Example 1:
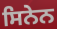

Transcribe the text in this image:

ਸਿਨੇਨ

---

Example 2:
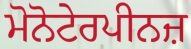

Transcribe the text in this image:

ਮੋਨੋਟੇਰਪੀਨਜ਼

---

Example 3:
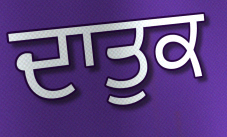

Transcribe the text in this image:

ਦਾਤੁਕ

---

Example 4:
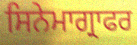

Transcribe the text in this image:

ਸਿਨੇਮਾਗ੍ਰਾਫਰ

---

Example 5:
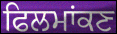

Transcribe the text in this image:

ਫਿਲਮਾਂਕਣ